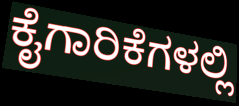
ಕೈಗಾರಿಕೆಗಳಲ್ಲಿ